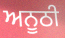
ਅਨੂਠੀ